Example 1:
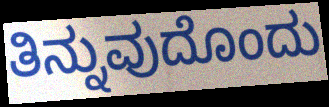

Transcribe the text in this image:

ತಿನ್ನುವುದೊಂದು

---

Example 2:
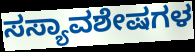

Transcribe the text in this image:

ಸಸ್ಯಾವಶೇಷಗಳ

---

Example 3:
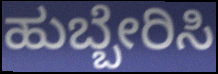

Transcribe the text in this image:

ಹುಬ್ಬೇರಿಸಿ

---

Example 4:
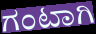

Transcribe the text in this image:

ಗಂಟಾಗಿ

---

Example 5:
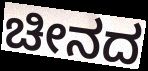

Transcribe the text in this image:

ಚೀನದ